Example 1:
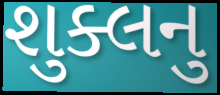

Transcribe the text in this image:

શુક્લનુ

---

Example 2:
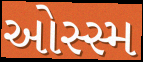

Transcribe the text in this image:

ઓસ્સ્મ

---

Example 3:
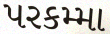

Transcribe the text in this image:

પરકમ્મા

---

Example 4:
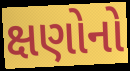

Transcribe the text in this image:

ક્ષણોનો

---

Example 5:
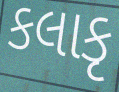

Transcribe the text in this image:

કલાકૃ